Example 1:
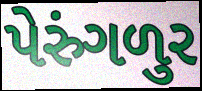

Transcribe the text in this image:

પેરુંગળુર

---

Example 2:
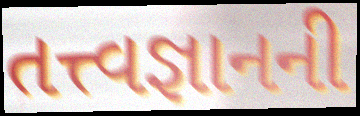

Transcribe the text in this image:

તત્ત્વજ્ઞાનની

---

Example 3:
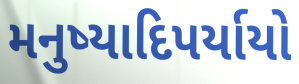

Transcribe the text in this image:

મનુષ્યાદિપર્યાયો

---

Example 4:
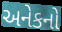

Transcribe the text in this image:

અનેકનો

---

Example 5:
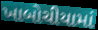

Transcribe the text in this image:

ખાબોચીયામાં